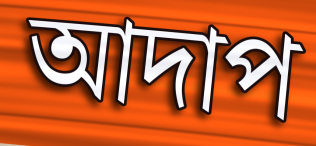
আদাপ